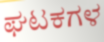
ಘಟಕಗಳ